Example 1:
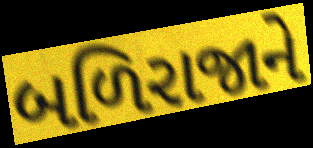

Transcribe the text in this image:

બળિરાજાને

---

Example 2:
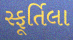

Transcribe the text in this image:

સ્ફૂર્તિલા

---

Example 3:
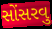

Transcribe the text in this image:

સોંસરવુ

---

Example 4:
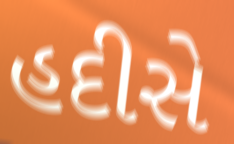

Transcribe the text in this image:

હદીસે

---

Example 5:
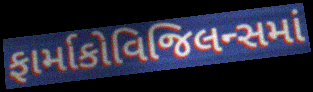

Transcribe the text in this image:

ફાર્માકોવિજિલન્સમાં